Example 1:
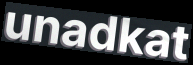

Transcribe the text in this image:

unadkat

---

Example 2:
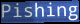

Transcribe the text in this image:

Pishing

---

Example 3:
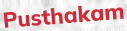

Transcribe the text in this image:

Pusthakam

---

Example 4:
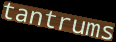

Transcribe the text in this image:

tantrums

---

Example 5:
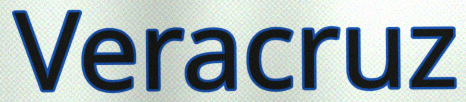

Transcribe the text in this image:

Veracruz